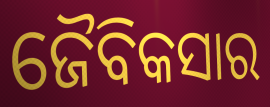
ଜୈବିକସାର